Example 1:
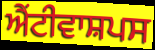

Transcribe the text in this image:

ਐਂਟੀਵਾਸ਼ਪਸ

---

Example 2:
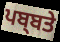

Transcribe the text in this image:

ਪਬ੍ਬਤੇ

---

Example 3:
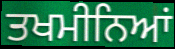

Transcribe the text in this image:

ਤਖਮੀਨਿਆਂ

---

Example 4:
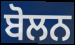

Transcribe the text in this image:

ਬੋਲਨ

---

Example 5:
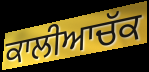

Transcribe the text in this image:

ਕਾਲੀਆਚੱਕ